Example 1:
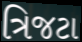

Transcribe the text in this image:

ત્રિજટા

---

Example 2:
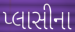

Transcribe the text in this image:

પ્લાસીના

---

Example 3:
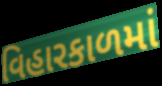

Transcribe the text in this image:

વિહારકાળમાં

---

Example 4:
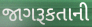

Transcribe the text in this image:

જાગરૂકતાની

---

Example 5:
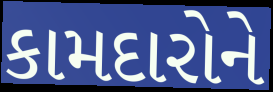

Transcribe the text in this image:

કામદારોને